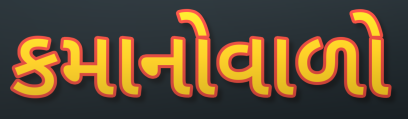
કમાનોવાળો